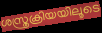
ശസ്ത്രക്രിയയിലൂടെ